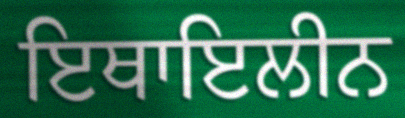
ਇਥਾਇਲੀਨ